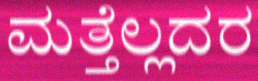
ಮತ್ತೆಲ್ಲದರ